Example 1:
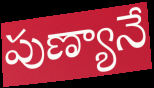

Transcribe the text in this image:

పుణ్యానే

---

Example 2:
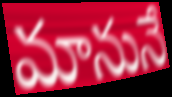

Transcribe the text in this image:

మానునే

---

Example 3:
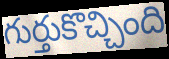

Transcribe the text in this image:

గుర్తుకొచ్చింది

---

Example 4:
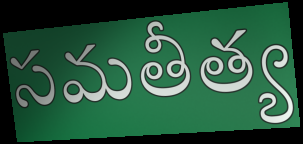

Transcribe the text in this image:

సమతీత్య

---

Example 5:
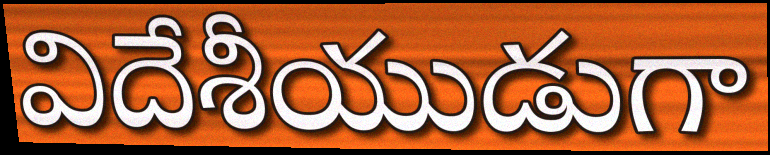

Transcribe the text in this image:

విదేశీయుడుగా